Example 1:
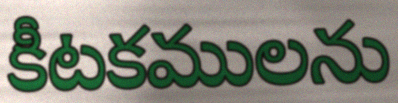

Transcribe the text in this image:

కీటకములను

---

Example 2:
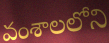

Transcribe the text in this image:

వంశాలలోని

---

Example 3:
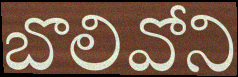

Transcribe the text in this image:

బొలివోని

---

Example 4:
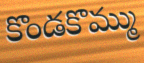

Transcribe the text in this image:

కొండకొమ్ము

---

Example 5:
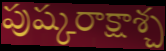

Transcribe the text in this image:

పుష్కరాక్షాశ్చ